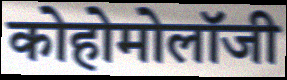
कोहोमोलॉजी